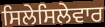
ਸਿਲੇਸਿਲੇਵਾਰ